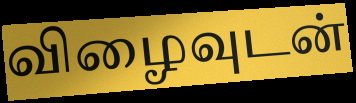
விழைவுடன்